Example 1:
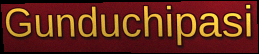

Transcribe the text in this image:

Gunduchipasi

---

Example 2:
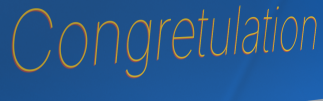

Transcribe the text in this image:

Congretulation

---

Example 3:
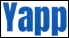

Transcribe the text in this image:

Yapp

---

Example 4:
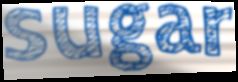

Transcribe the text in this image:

sugar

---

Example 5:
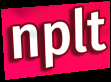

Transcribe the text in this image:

nplt